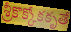
శ్రీకొక్కోకకృతే